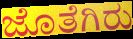
ಜೊತೆಗಿರು